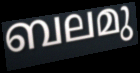
ബലമു